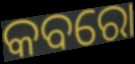
କବରୋ